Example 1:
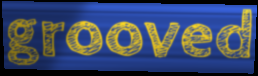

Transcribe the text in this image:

grooved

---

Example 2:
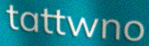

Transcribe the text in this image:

tattwno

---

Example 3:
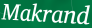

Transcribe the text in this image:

Makrand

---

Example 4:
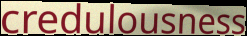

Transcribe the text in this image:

credulousness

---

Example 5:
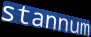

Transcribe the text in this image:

stannum